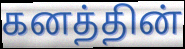
கனத்தின்